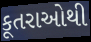
કૂતરાઓથી